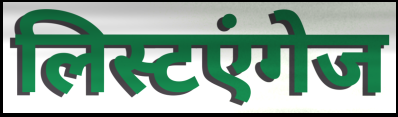
लिस्टएंगेज